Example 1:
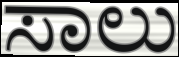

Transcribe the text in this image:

ಸಾಲು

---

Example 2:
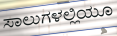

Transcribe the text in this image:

ಸಾಲುಗಳಲ್ಲಿಯೂ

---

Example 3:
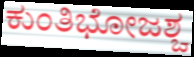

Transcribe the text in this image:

ಕುಂತಿಭೋಜಶ್ಚ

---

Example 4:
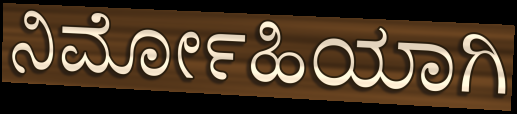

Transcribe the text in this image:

ನಿರ್ಮೋಹಿಯಾಗಿ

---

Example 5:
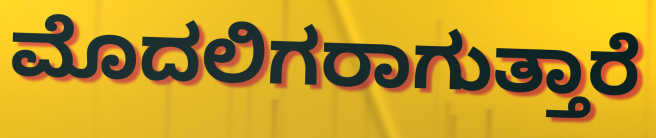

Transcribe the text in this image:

ಮೊದಲಿಗರಾಗುತ್ತಾರೆ